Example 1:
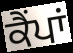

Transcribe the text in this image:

ਕੈੰਪਾਂ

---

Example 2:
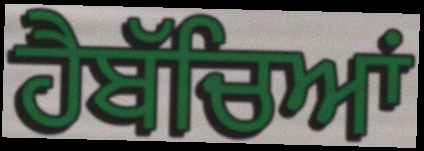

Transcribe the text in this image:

ਹੈਬੱਚਿਆਂ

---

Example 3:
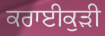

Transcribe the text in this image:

ਕਰਾਈਕੁੜੀ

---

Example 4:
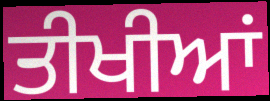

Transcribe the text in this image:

ਤੀਖੀਆਂ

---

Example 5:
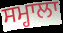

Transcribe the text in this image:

ਸਮ੍ਹ੍ਹਾਲਾ